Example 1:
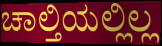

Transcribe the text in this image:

ಚಾಲ್ತಿಯಲ್ಲಿಲ್ಲ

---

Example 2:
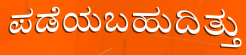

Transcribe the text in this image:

ಪಡೆಯಬಹುದಿತ್ತು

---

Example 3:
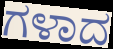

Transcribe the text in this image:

ಗಳಾದ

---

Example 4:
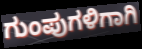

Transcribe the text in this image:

ಗುಂಪುಗಳಿಗಾಗಿ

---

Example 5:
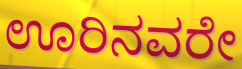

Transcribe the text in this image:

ಊರಿನವರೇ